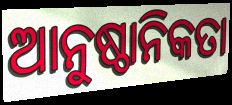
ଆନୁଷ୍ଠାନିକତା